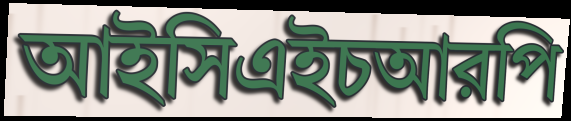
আইসিএইচআরপি